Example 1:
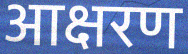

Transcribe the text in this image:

आक्षरण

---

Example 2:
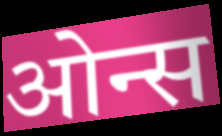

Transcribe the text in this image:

ओन्स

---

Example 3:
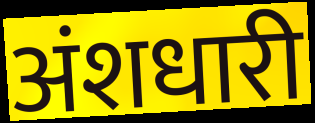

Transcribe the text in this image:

अंशधारी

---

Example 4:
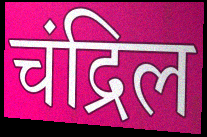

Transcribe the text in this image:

चंद्रिल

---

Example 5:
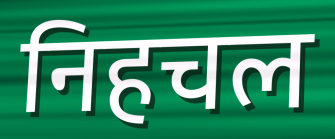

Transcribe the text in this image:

निहचल